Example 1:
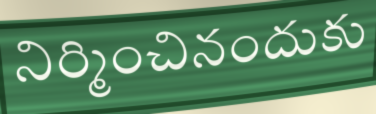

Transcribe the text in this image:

నిర్మించినందుకు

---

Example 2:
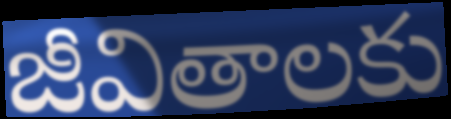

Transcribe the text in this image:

జీవితాలకు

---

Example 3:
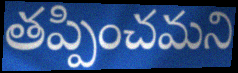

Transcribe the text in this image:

తప్పించమని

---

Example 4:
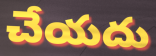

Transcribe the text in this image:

చేయదు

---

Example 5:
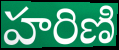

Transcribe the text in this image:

హరిణి